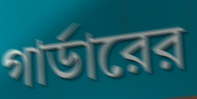
গার্ডারের